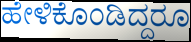
ಹೇಳಿಕೊಂಡಿದ್ದರೂ